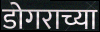
डोगराच्या